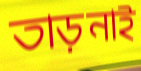
তাড়নাই